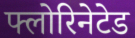
फ्लोरिनेटेड